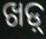
ଖଡ଼୍